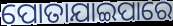
ପୋତାଯାଇପାରେ